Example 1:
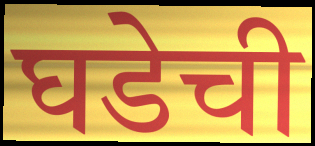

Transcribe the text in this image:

घडेची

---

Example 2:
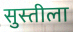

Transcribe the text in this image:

सुस्तीला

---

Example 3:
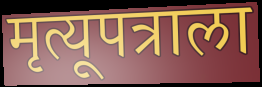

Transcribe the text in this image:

मृत्यूपत्राला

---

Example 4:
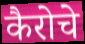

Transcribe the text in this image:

कैरोचे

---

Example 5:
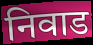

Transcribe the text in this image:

निवाड